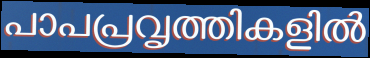
പാപപ്രവൃത്തികളിൽ